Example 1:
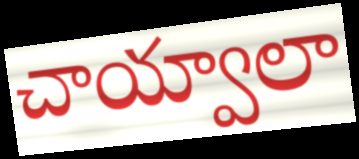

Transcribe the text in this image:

చాయ్వాలా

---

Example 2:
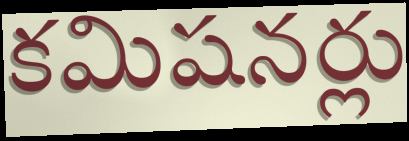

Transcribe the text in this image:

కమిషనర్లు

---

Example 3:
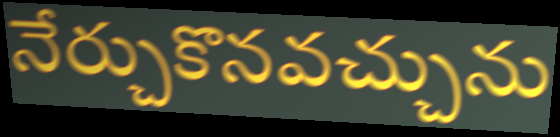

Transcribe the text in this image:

నేర్చుకొనవచ్చును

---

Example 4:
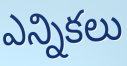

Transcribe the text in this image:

ఎన్నికలు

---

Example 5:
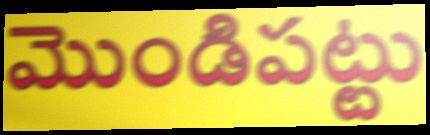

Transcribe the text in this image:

మొండిపట్టు